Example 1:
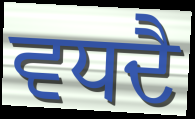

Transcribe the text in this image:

ਵਧਦੈ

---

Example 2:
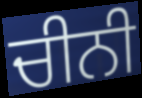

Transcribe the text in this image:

ਚੀਨੀ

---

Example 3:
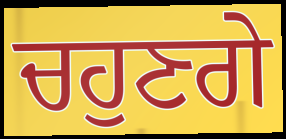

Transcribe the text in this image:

ਚਹੁਣਗੇ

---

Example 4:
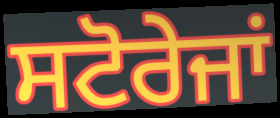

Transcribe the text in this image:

ਸਟੋਰੇਜਾਂ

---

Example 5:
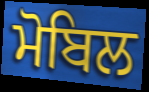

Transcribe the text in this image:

ਮੋਬਿਲ